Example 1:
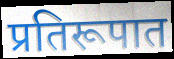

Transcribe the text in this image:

प्रतिरूपात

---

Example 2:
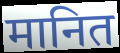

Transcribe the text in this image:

मानित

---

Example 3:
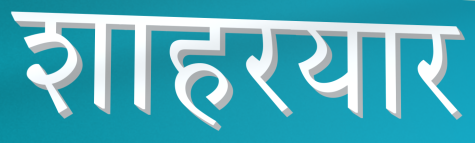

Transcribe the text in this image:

शाहरयार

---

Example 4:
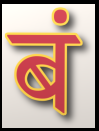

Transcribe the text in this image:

बं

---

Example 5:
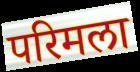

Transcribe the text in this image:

परिमला